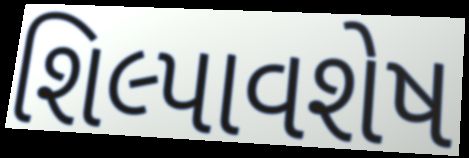
શિલ્પાવશેષ